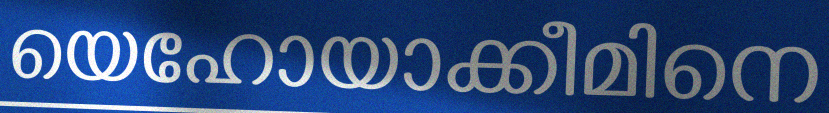
യെഹോയാക്കീമിനെ